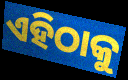
ଏହିଠାକୁ